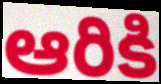
ఆరికి